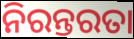
ନିରନ୍ତରତା